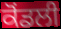
ਕੋਂਡਲੀ